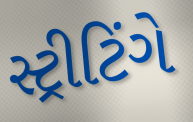
સ્ટ્રીટિંગે